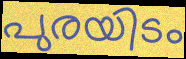
പുരയിടം